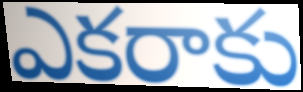
ఎకరాకు